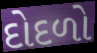
દોદળો